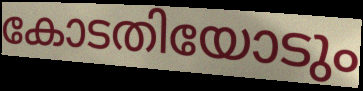
കോടതിയോടും